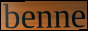
benne